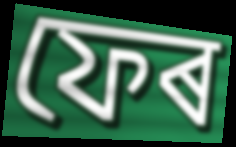
ফেৰ